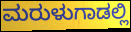
ಮರುಳುಗಾಡಲ್ಲಿ